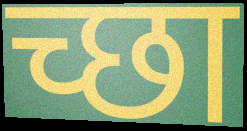
च्छा